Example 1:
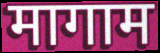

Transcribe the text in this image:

मागाम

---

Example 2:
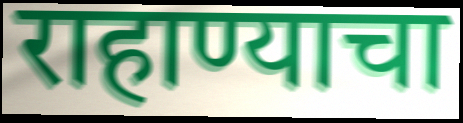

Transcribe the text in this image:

राहाण्याचा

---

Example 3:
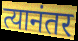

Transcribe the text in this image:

त्यानंतर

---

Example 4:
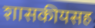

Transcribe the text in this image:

शासकीयसह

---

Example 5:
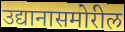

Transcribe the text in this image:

उद्यानासमोरील